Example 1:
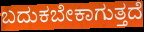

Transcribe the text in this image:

ಬದುಕಬೇಕಾಗುತ್ತದೆ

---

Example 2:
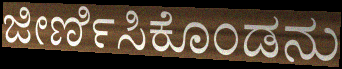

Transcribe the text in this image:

ಜೀರ್ಣಿಸಿಕೊಂಡನು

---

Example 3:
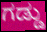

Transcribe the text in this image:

ಗಡ್ಡು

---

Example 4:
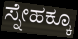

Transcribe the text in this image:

ಸ್ನೇಹಕ್ಕೂ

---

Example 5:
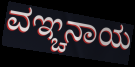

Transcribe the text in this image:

ವಞ್ಚನಾಯ